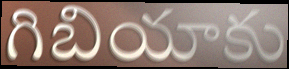
గిబియాకు